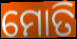
ମୋତି